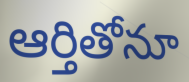
ఆర్తితోనూ